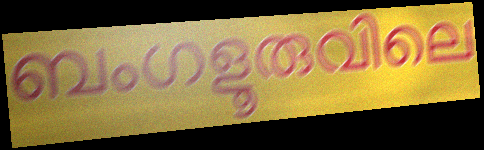
ബംഗളൂരുവിലെ